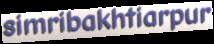
simribakhtiarpur